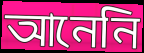
আনেনি